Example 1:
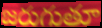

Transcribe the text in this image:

జరుగుతూ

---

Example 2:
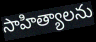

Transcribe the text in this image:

సాహిత్యాలను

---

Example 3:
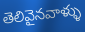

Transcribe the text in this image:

తెలివైనవాళ్ళు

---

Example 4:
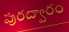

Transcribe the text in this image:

పురద్వారం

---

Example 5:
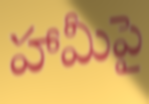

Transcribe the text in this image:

హామీపై